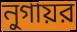
নুগায়র